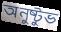
অনুষ্টুভ